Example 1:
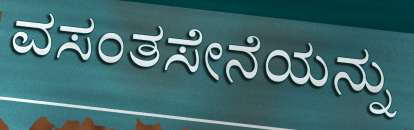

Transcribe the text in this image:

ವಸಂತಸೇನೆಯನ್ನು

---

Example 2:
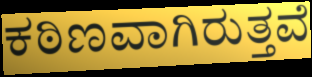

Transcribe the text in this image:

ಕಠಿಣವಾಗಿರುತ್ತವೆ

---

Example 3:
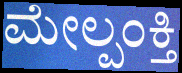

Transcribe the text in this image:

ಮೇಲ್ಪಂಕ್ತಿ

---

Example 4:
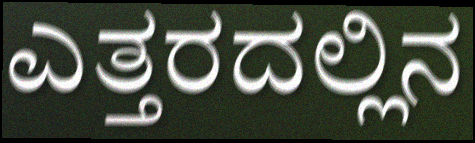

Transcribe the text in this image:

ಎತ್ತರದಲ್ಲಿನ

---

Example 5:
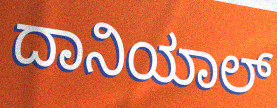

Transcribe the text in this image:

ದಾನಿಯಾಲ್